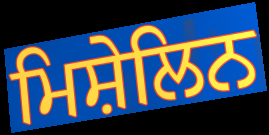
ਮਿਸ਼ੇਲਿਨ